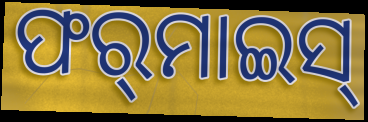
ଫର୍‌ମାଇସ୍